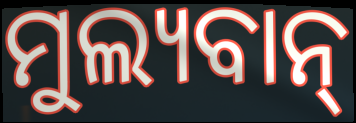
ମୁଲ୍ୟବାନ୍